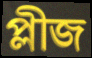
প্লীজ